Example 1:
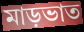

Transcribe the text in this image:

মাড়ভাত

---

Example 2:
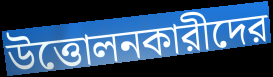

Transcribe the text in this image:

উত্তোলনকারীদের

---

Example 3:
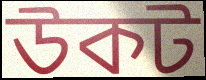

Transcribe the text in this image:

উকট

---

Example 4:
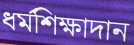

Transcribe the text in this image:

ধর্মশিক্ষাদান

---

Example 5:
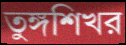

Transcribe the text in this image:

তুঙ্গশিখর